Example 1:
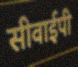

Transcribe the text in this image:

सीवाईपी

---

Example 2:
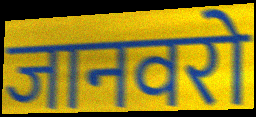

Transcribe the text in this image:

जानवरो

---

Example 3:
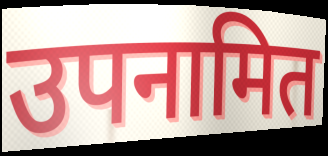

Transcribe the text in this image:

उपनामित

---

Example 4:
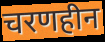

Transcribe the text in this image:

चरणहीन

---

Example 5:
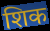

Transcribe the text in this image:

शिक